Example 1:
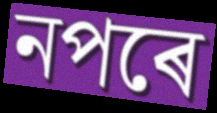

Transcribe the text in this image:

নপৰে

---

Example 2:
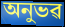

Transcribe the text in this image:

অনুভৱ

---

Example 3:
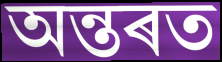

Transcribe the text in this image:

অন্তৰত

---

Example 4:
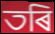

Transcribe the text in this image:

তৰি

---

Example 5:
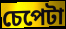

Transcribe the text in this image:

চেপেটা